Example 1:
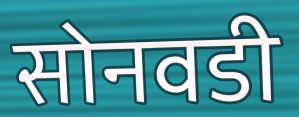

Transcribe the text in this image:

सोनवडी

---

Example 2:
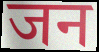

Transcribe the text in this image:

जन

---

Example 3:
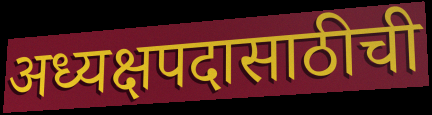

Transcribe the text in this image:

अध्यक्षपदासाठीची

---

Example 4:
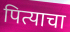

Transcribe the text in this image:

पित्याचा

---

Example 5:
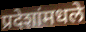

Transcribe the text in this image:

प्रदेशांमधले